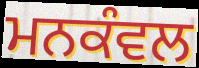
ਮਨਕੰਵਲ